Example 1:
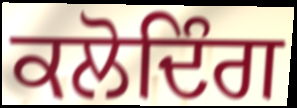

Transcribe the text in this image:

ਕਲੋਦਿੰਗ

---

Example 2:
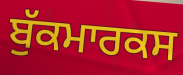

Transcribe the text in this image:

ਬੁੱਕਮਾਰਕਸ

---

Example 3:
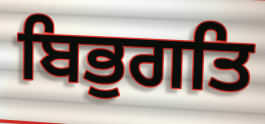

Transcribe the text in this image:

ਬਿਭੁਗਤਿ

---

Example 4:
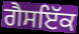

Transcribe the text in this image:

ਗੈਸਇੱਕ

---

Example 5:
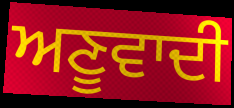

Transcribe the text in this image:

ਅਣੂਵਾਦੀ